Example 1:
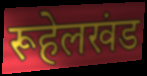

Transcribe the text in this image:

रूहेलखंड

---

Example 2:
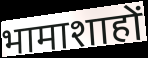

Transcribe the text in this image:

भामाशाहों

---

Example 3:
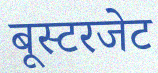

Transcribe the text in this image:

बूस्टरजेट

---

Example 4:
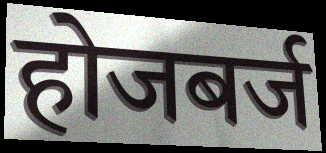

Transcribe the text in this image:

होजबर्ज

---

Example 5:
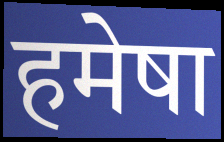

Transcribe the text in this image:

हमेषा